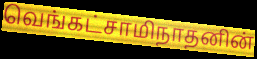
வெங்கட்சாமிநாதனின்